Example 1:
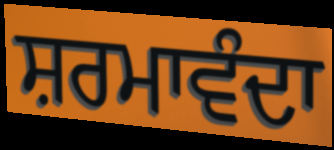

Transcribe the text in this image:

ਸ਼ਰਮਾਵੰਦਾ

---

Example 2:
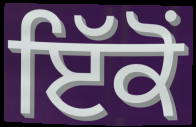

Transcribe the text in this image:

ਇੱਕੋਂ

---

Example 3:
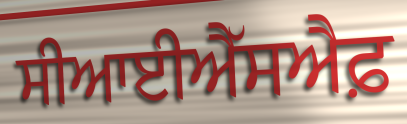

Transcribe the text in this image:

ਸੀਆਈਐੱਸਐਫ਼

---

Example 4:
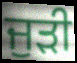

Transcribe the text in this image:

ਜੁੜੀ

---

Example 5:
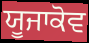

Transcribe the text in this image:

ਯੂਜਾਕੋਵ